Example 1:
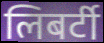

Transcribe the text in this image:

लिबर्टी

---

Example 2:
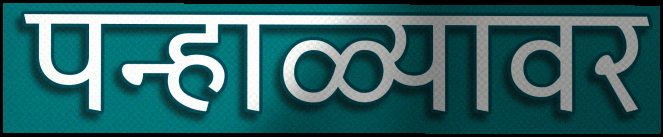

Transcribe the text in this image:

पन्हाळ्यावर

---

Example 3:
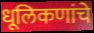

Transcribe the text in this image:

धूलिकणांचे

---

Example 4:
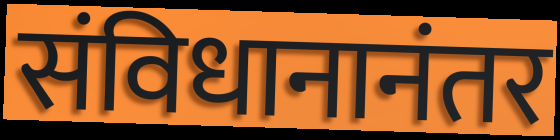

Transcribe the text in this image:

संविधानानंतर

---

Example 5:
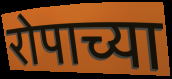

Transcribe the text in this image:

रोपाच्या